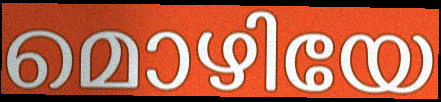
മൊഴിയേ